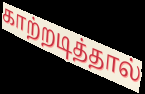
காற்றடித்தால்